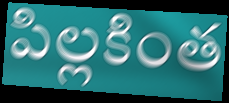
పిల్లకింత